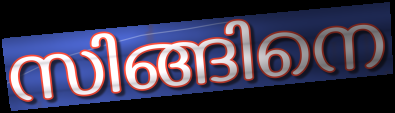
സിങ്ങിനെ